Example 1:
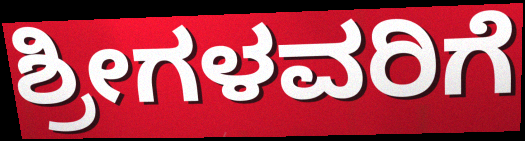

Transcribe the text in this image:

ಶ್ರೀಗಳವರಿಗೆ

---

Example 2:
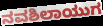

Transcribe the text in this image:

ನವಶಿಲಾಯುಗ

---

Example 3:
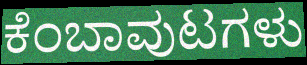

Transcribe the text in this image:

ಕೆಂಬಾವುಟಗಳು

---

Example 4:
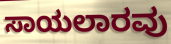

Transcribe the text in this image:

ಸಾಯಲಾರವು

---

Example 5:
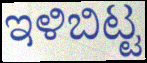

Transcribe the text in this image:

ಇಳಿಬಿಟ್ಟ